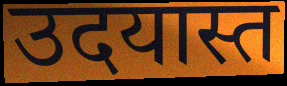
उदयास्त